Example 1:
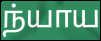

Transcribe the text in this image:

ந்யாய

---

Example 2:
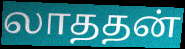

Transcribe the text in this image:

லாததன்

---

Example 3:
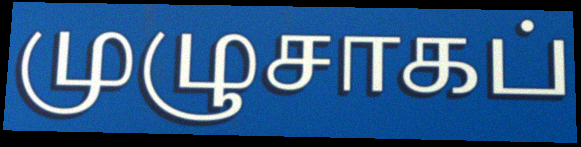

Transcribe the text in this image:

முழுசாகப்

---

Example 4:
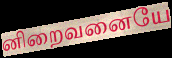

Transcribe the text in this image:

னிறைவனையே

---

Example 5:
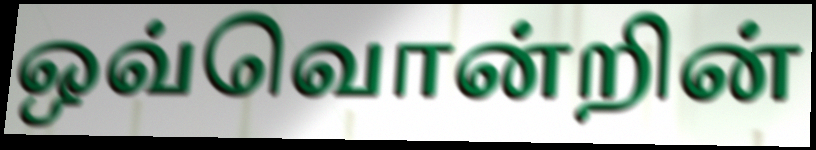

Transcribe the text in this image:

ஒவ்வொன்றின்